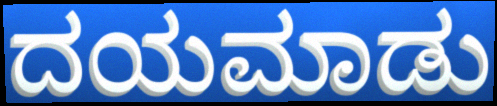
ದಯಮಾಡು